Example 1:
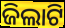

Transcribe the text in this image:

ଜିଲାଟି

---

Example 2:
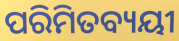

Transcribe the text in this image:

ପରିମିତବ୍ୟୟୀ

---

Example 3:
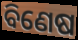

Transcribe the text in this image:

ବିଣେଷ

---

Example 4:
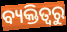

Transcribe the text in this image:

ବ୍ୟକ୍ତିତ୍ୱରୁ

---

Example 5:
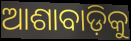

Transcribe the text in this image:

ଆଶାବାଡ଼ିକୁ